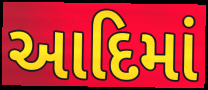
આદિમાં